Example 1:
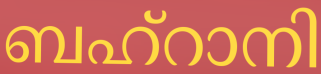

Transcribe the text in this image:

ബഹ്റാനി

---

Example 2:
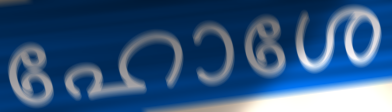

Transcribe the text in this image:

ഹോശേ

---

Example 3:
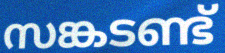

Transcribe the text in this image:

സങ്കടണ്ട്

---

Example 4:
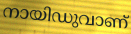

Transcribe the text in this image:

നായിഡുവാണ്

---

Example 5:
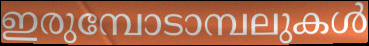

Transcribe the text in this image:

ഇരുമ്പോടാമ്പലുകൾ